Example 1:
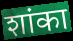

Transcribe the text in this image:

शांका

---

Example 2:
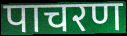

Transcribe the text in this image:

पाचरण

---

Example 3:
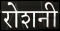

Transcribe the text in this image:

रोशनी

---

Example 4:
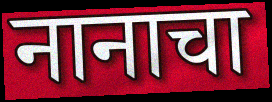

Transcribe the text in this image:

नानाचा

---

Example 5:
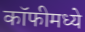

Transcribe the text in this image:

कॉफीमध्ये